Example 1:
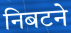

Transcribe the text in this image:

निबटने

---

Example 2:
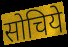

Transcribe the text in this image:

सोचिये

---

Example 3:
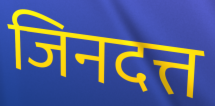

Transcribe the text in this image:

जिनदत्त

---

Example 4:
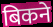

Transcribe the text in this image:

बिकने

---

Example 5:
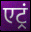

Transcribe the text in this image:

एट्रं